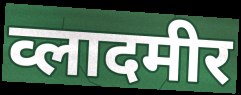
व्लादमीर